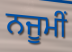
ਨਜੂਮੀਂ